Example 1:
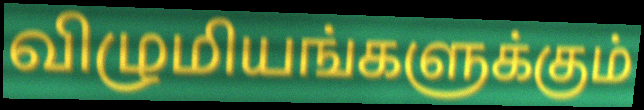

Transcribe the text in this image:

விழுமியங்களுக்கும்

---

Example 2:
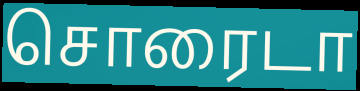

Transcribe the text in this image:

சொரைடா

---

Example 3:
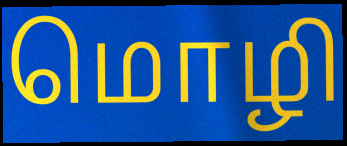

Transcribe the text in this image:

மொழி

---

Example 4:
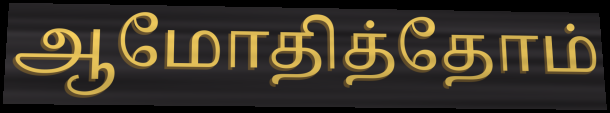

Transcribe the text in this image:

ஆமோதித்தோம்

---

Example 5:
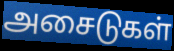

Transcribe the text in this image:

அசைடுகள்